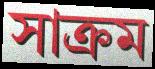
সাক্রম